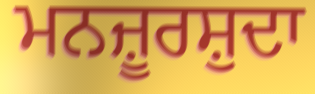
ਮਨਜ਼ੂਰਸ਼ੁਦਾ